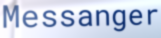
Messanger